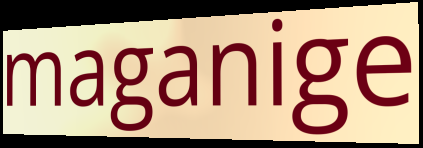
maganige